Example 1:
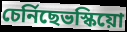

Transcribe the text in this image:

চেৰ্নিছেভস্কিয়ো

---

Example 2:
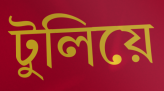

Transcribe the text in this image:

টুলিয়ে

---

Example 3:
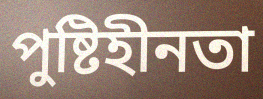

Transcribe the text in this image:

পুষ্টিহীনতা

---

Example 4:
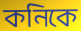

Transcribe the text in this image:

কনিকে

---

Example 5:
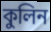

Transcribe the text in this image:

কুলিন